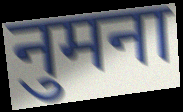
नुमना